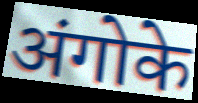
अंगोके